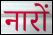
नारों